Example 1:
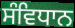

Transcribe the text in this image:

ਸੰਵਿਧਾਨ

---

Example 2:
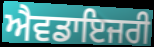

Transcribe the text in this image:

ਐਵਡਾਇਜਰੀ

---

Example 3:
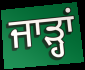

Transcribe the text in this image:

ਜਾੜ੍ਹਾਂ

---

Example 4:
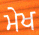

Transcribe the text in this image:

ਮੇਖ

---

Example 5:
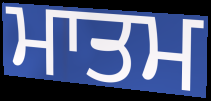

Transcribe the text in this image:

ਮਾਤਮ